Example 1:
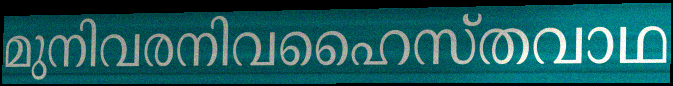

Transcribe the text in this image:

മുനിവരനിവഹൈസ്തവാഥ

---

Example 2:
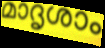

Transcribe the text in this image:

മാദൃശാം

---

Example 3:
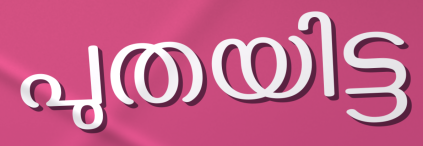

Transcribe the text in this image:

പുതയിട്ട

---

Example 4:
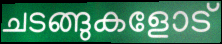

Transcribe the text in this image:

ചടങ്ങുകളോട്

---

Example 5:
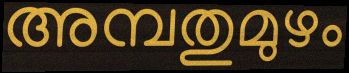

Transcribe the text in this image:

അമ്പതുമുഴം